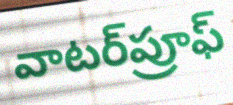
వాటర్‌ప్రూఫ్